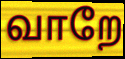
வாறே